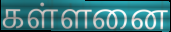
கள்ளனை